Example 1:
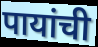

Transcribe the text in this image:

पायांची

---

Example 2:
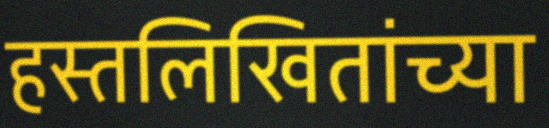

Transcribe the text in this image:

हस्तलिखितांच्या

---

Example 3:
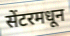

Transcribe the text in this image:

सेंटरमधून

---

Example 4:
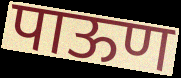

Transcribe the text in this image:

पाऊण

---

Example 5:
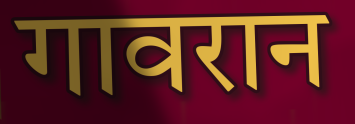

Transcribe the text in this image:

गावरान